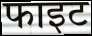
फाइट